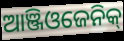
ଆଞ୍ଜିଓଜେନିକ୍